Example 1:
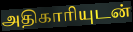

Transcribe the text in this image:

அதிகாரியுடன்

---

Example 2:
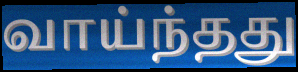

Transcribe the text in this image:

வாய்ந்தது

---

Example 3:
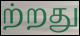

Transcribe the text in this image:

ற்றது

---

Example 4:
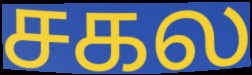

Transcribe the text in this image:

சகல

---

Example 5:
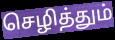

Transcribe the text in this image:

செழித்தும்